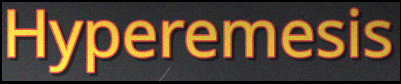
Hyperemesis